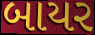
બાયર